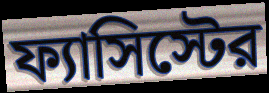
ফ্যাসিস্টের